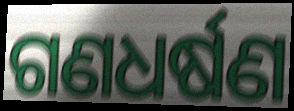
ଗଣଧର୍ଷଣ